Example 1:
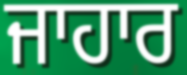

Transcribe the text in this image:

ਜਾਹਾਰ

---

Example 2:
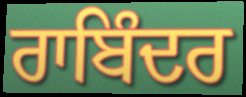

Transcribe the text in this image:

ਰਾਬਿੰਦਰ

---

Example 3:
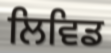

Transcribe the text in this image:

ਲਿਵਿਡ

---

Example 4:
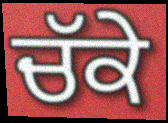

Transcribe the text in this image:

ਚੱਕੇ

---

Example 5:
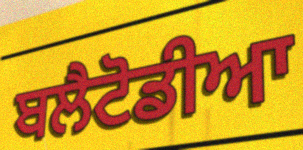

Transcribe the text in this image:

ਬਲੈਟੋਡੀਆ